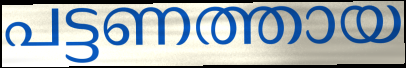
പട്ടണത്തായ